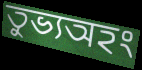
তুভ্যঅহং